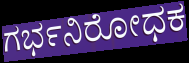
ಗರ್ಭನಿರೋಧಕ